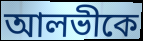
আলভীকে